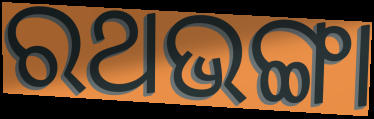
ରଥଭଙ୍ଗା